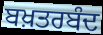
ਬਖ਼ਤਰਬੰਦ